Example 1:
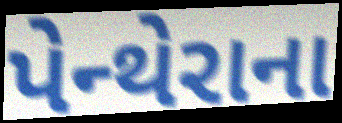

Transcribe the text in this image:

પેન્થેરાના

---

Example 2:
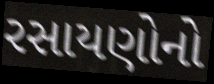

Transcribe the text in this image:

રસાયણોનો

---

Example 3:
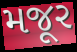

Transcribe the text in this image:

મજૂર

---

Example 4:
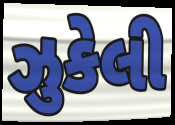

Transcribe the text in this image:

ઝુકેલી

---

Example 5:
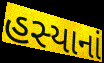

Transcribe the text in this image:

હસ્યાનાં